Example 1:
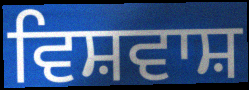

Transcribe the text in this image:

ਵਿਸ਼ਵਾਸ਼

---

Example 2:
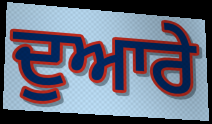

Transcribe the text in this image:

ਦੁਆਰੇ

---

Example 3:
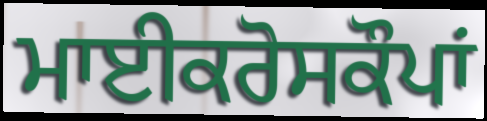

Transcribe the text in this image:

ਮਾਈਕਰੋਸਕੌਪਾਂ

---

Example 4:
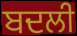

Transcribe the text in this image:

ਬਦਲੀ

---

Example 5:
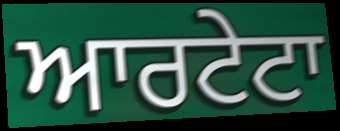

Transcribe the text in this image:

ਆਰਟੇਟਾ